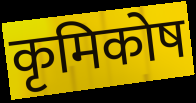
कृमिकोष